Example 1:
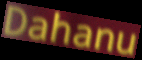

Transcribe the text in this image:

Dahanu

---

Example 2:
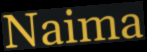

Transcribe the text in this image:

Naima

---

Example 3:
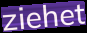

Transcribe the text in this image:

ziehet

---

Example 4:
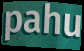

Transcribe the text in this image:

pahu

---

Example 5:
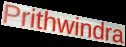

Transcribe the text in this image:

Prithwindra